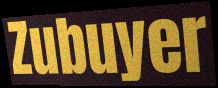
Zubuyer